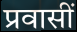
प्रवासीं